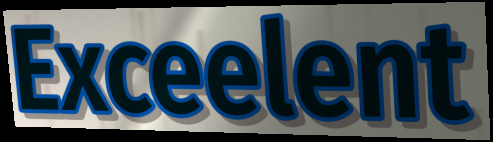
Exceelent